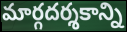
మార్గదర్శకాన్ని